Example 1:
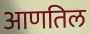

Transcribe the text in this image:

आणतिल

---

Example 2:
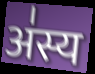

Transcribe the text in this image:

अ॑स्य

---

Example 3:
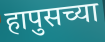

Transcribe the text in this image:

हापुसच्या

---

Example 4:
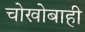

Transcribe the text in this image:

चोखोबाही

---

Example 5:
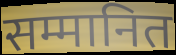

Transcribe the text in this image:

सम्मानित